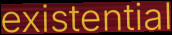
existential